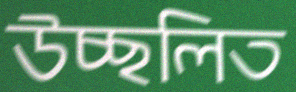
উচ্ছলিত